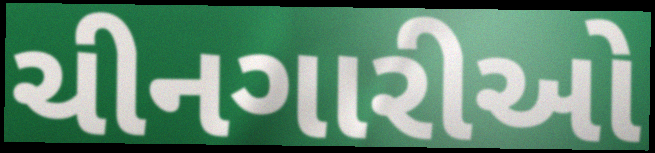
ચીનગારીઓ